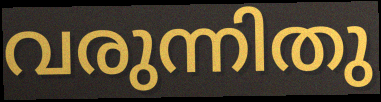
വരുന്നിതു